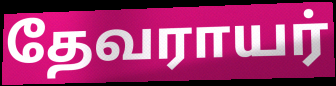
தேவராயர்